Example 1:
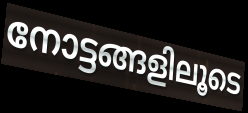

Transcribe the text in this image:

നോട്ടങ്ങളിലൂടെ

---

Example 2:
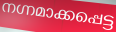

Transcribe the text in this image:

നഗ്നമാക്കപ്പെട്ട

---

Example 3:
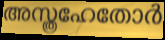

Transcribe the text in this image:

അസ്ത്രഹേതോർ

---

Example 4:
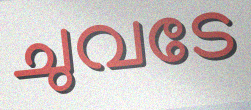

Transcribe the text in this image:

ചുവടേ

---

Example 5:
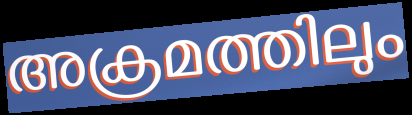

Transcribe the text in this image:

അക്രമത്തിലും